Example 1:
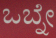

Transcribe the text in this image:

ಒಬ್ನೇ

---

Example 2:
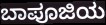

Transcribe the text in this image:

ಬಾಪೂಜಿಯ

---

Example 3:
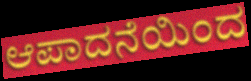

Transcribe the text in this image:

ಆಪಾದನೆಯಿಂದ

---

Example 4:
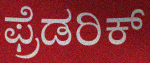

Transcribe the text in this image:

ಫ್ರೆಡರಿಕ್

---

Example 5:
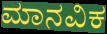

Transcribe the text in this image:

ಮಾನವಿಕ